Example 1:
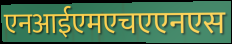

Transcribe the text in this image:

एनआईएमएचएएनएस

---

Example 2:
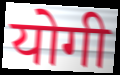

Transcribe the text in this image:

योगी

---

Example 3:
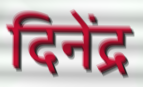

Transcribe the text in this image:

दिनेंद्र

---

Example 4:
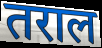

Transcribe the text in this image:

तराल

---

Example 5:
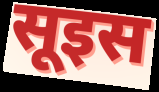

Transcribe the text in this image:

सूइस